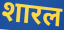
शारल